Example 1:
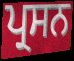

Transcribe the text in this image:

ਪ੍ਰਸਨ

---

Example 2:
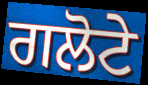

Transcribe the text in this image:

ਗਲੋਟੇ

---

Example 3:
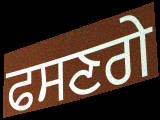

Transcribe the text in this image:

ਫਸਣਗੇ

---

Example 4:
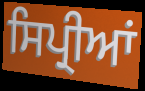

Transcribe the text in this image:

ਸਿਪ੍ਰੀਆਂ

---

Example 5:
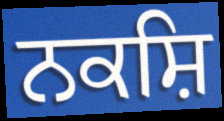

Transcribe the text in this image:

ਨਕਸ਼ਿ